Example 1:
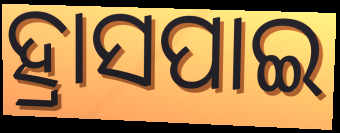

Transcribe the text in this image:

ହ୍ରାସପାଇ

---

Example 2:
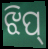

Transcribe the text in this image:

ଝିପ୍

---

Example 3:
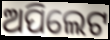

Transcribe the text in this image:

ଅପିଲେଟ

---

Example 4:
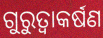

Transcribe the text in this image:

ଗୁରୁତ୍ଵାକର୍ଷଣ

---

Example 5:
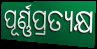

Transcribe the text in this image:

ପୂର୍ଣ୍ଣପ୍ରତ୍ୟକ୍ଷ